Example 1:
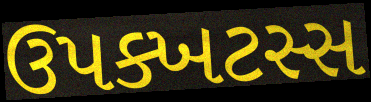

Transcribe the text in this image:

ઉપક્ખટસ્સ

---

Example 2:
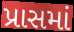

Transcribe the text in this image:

પ્રાસમાં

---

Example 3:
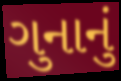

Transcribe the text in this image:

ગુનાનું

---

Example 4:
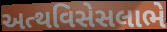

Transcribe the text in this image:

અત્થવિસેસલાભે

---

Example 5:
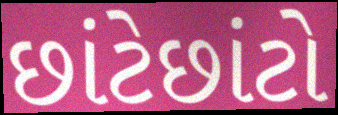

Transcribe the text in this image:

છાંટેછાંટો